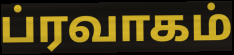
ப்ரவாகம்